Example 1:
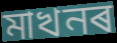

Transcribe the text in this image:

মাখনৰ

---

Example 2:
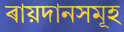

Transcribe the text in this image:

ৰায়দানসমূহ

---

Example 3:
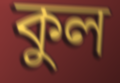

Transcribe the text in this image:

কুল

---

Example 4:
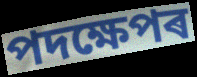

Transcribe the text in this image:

পদক্ষেপৰ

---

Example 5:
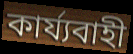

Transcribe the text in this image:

কাৰ্য্যবাহী